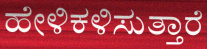
ಹೇಳಿಕಳಿಸುತ್ತಾರೆ